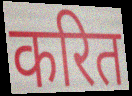
करित